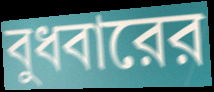
বুধবারের